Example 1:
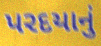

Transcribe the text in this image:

પરદયાનું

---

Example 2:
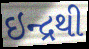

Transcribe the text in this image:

ઇન્દ્રથી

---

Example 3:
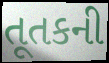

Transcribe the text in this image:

તૂતકની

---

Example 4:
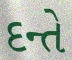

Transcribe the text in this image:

દન્તે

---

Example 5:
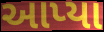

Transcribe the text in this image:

આપ્યા